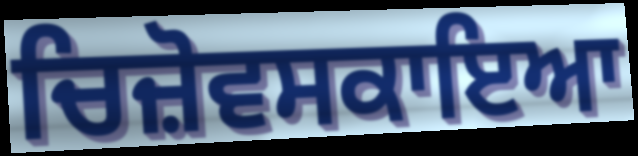
ਚਿਜ਼ੋਵਸਕਾਇਆ